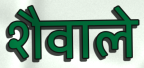
शैवाले